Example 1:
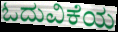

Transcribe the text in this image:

ಓದುವಿಕೆಯ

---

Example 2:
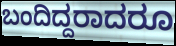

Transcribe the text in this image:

ಬಂದಿದ್ದರಾದರೂ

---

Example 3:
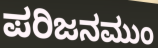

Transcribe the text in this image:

ಪರಿಜನಮುಂ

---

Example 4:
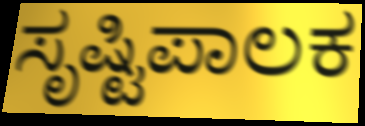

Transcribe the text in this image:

ಸೃಷ್ಟಿಪಾಲಕ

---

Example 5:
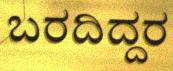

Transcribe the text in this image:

ಬರದಿದ್ದರ